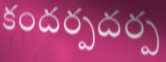
కందర్పదర్ప